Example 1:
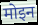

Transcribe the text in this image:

मोइन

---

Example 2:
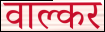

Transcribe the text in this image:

वाल्कर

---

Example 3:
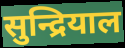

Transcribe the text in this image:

सुन्द्रियाल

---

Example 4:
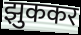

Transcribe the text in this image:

झुककर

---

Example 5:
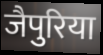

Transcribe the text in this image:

जैपुरिया